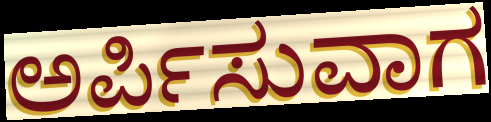
ಅರ್ಪಿಸುವಾಗ